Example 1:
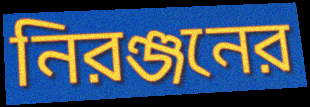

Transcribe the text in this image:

নিরঞ্জনের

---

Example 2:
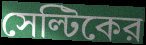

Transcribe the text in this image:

সেল্টিকের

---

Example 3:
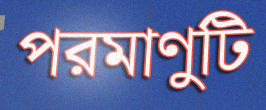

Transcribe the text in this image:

পরমাণুটি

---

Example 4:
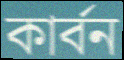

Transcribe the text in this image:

কার্বন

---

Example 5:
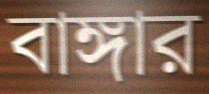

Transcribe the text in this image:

বাঙ্গার